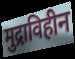
मुद्राविहीन